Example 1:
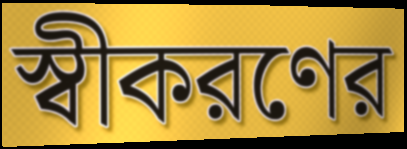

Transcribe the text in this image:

স্বীকরণের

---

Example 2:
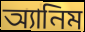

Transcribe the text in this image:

অ্যানিম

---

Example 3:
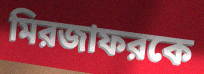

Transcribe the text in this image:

মিরজাফরকে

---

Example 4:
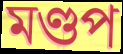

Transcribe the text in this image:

মণ্ডপ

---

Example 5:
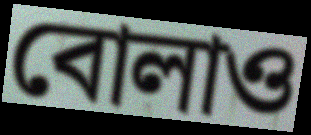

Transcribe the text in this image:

বোলাও